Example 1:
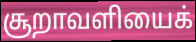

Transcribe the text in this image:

சூறாவளியைக்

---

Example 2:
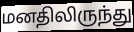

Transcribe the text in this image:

மனதிலிருந்து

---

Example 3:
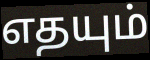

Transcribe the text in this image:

எதயும்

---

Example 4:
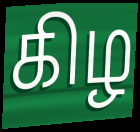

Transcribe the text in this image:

கிழ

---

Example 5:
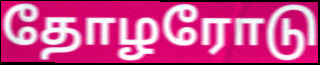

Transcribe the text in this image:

தோழரோடு